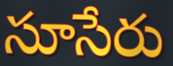
సూసేరు